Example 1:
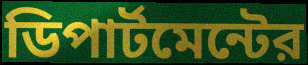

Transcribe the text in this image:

ডিপার্টমেন্টের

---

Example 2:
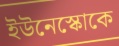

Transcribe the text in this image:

ইউনেস্কোকে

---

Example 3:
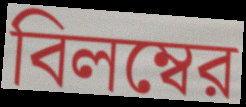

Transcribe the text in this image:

বিলম্বের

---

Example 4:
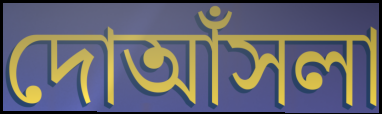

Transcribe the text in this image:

দোআঁসলা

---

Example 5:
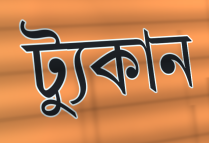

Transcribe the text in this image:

ট্যুকান